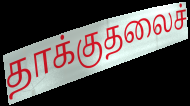
தாக்குதலைச்